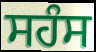
ਸਹੰਸ